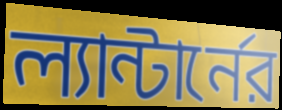
ল্যান্টার্নের